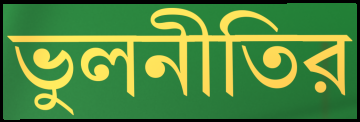
ভুলনীতির